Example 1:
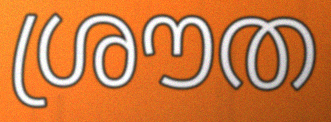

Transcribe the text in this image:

ശ്രൗത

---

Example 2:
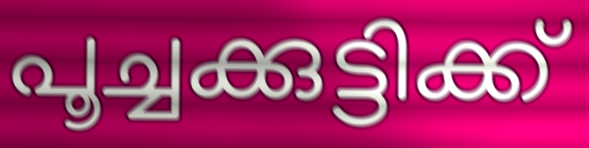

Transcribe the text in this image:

പൂച്ചക്കുട്ടിക്ക്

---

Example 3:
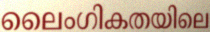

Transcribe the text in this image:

ലൈംഗികതയിലെ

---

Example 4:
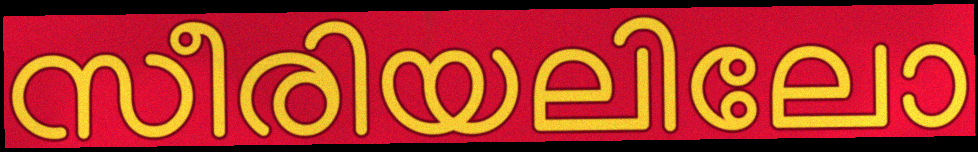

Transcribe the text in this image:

സീരിയലിലോ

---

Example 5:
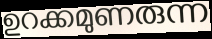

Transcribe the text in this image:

ഉറക്കമുണരുന്ന